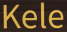
Kele